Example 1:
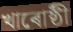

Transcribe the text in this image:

খাৰোষ্ঠী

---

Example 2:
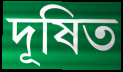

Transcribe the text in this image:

দূষিত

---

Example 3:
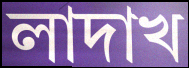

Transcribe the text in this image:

লাদাখ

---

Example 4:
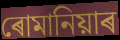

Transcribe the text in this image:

ৰোমানিয়াৰ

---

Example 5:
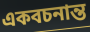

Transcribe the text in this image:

একবচনান্ত